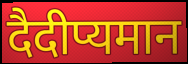
दैदीप्यमान